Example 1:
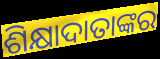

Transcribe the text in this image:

ଶିକ୍ଷାଦାତାଙ୍କର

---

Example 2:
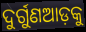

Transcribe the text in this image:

ଦୁର୍ଗୁଣଆଡ଼କୁ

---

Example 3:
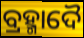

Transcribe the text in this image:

ବ୍ରହ୍ମାଦୈ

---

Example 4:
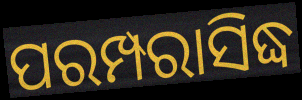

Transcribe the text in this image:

ପରମ୍ପରାସିଦ୍ଧ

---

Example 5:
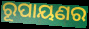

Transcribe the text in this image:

ରୂପାୟଣର